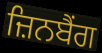
ਜ਼ਿਨਬੈਂਗ